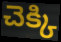
చెక్కి